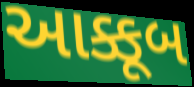
આક્કૂબ